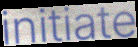
initiate